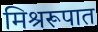
मिश्ररूपात